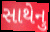
સાથેનુ